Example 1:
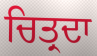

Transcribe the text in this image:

ਚਿਤ੍ਰਦਾ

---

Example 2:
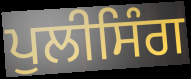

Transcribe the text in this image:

ਪੁਲੀਸਿੰਗ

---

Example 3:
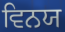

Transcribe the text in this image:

ਵਿਨਯ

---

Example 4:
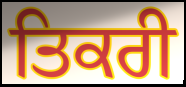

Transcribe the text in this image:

ਤਿਕਰੀ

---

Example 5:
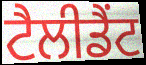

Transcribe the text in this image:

ਟੈਲੀਡੈਂਟ